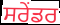
ਸਰੇਂਡਰ